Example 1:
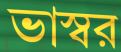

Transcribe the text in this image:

ভাস্বর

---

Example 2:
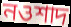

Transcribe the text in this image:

নওশাদ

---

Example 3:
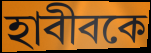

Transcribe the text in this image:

হাবীবকে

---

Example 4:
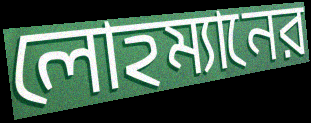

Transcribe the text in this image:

লোহম্যানের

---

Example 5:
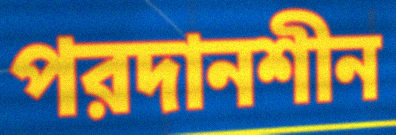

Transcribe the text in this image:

পরদানশীন